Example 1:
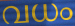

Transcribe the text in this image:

വധം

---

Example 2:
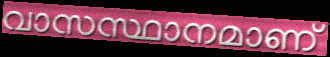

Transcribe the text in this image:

വാസസ്ഥാനമാണ്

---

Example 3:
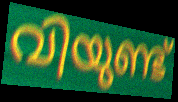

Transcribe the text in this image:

വിയുണ്ട്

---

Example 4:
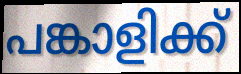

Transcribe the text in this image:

പങ്കാളിക്ക്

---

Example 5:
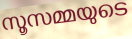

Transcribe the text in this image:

സൂസമ്മയുടെ